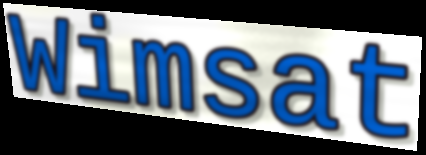
Wimsat